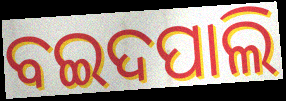
ବଇଦପାଲି